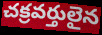
చక్రవర్తులైన